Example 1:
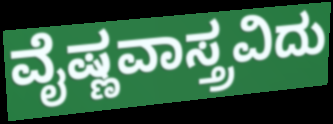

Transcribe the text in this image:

ವೈಷ್ಣವಾಸ್ತ್ರವಿದು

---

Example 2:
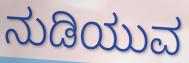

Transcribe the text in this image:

ನುಡಿಯುವ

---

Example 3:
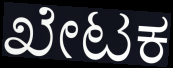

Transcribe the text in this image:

ಖೇಟಕ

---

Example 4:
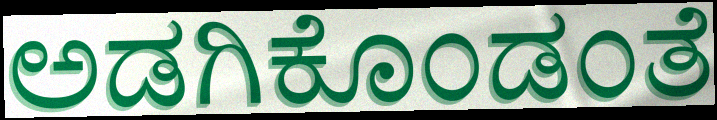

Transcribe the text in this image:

ಅಡಗಿಕೊಂಡಂತೆ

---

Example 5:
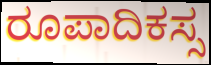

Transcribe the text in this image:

ರೂಪಾದಿಕಸ್ಸ